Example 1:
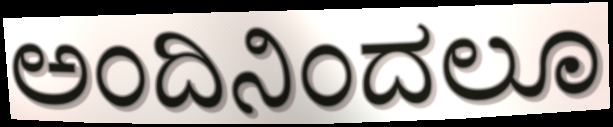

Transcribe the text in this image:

ಅಂದಿನಿಂದಲೂ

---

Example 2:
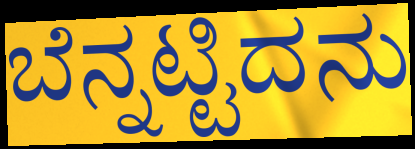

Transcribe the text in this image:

ಬೆನ್ನಟ್ಟಿದನು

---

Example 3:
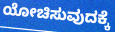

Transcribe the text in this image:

ಯೋಚಿಸುವುದಕ್ಕೆ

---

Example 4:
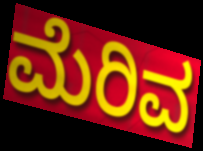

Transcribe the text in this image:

ಮೆರಿವ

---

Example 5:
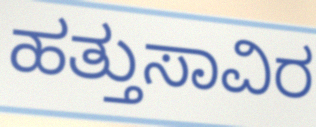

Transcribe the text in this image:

ಹತ್ತುಸಾವಿರ